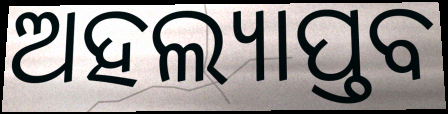
ଅହଲ୍ୟାପ୍ତବ